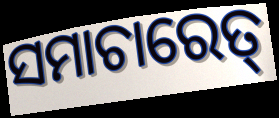
ସମାଚାରେତ୍